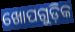
ଖୋପଗୁଡ଼ିକ